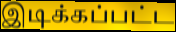
இடிக்கப்பட்ட